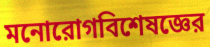
মনোরোগবিশেষজ্ঞের